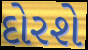
દોરશે